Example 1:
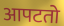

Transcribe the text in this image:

आपटतो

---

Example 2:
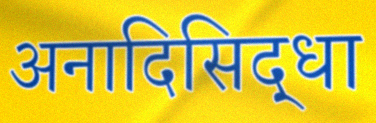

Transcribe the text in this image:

अनादिसिद्धा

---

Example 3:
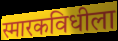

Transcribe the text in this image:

स्मारकविधीला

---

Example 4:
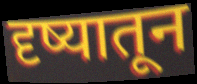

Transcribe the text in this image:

दृष्यातून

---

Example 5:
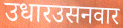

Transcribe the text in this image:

उधारउसनवार